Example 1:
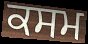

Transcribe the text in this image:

ਕਸਮ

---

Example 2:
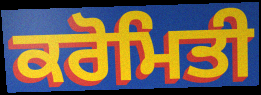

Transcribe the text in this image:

ਕਰੋਮਿਤੀ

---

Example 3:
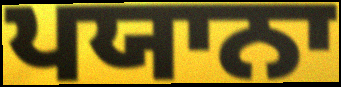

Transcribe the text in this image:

ਪਯਾਨਾ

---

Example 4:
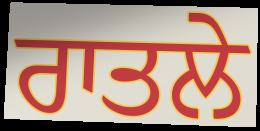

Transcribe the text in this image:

ਰਾਤਲੇ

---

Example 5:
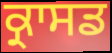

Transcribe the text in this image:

ਕ੍ਰਾਸਡ